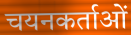
चयनकर्ताओं